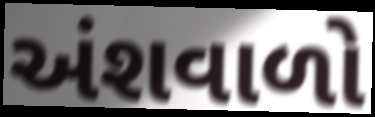
અંશવાળો